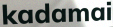
kadamai